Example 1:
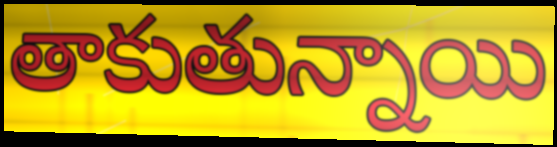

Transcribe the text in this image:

తాకుతున్నాయి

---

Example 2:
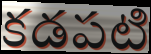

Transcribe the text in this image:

కడపటి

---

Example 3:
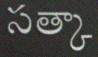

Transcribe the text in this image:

సత్కా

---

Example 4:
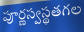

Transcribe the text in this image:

పూర్ణస్వస్థతగల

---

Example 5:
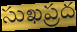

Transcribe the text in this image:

సుఖప్రద